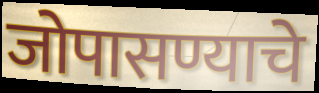
जोपासण्याचे